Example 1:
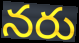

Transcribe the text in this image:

నరు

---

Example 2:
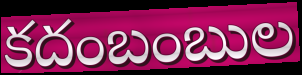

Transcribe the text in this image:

కదంబంబుల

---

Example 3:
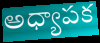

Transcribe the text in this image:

అధ్యాపక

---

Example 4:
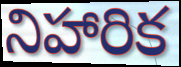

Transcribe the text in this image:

నిహారిక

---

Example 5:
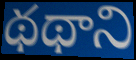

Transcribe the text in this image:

థథాని